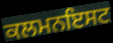
ਕਲਮਨਇਸਟ